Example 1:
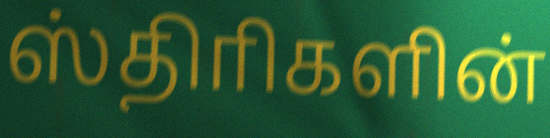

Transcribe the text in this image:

ஸ்திரிகளின்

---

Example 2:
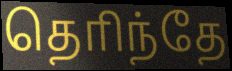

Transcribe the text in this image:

தெரிந்தே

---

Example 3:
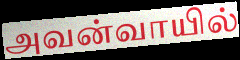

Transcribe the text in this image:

அவன்வாயில்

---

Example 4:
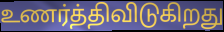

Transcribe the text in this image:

உணர்த்திவிடுகிறது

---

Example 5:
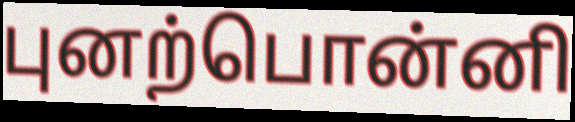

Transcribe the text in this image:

புனற்பொன்னி